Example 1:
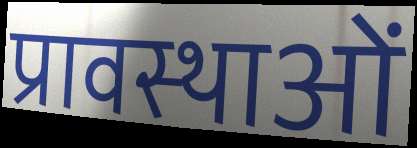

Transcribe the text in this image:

प्रावस्थाओं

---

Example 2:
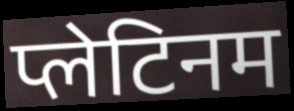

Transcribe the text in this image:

प्लेटिनम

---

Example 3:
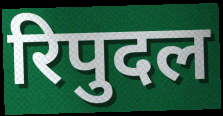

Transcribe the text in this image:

रिपुदल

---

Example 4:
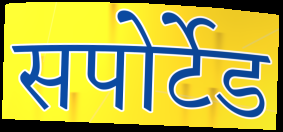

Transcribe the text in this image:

सपोर्टेड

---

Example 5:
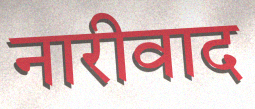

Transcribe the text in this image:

नारीवाद